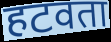
हटवता